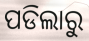
ପଡିଲାରୁ